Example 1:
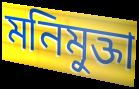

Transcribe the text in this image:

মনিমুক্তা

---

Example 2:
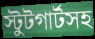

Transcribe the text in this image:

স্টুটগার্টসহ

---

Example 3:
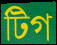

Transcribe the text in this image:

টিগ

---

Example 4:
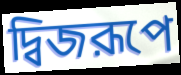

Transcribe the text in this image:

দ্বিজরূপে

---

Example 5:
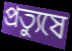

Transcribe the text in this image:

প্রত্যুষে